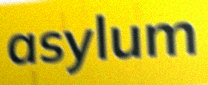
asylum